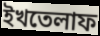
ইখতেলাফ